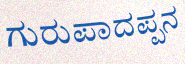
ಗುರುಪಾದಪ್ಪನ